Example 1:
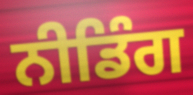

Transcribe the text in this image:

ਨੀਡਿੰਗ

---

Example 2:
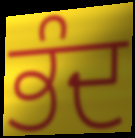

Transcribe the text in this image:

ਭੰਦ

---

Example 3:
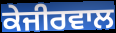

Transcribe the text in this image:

ਕੇਜੀਰਵਾਲ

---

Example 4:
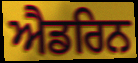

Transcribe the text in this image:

ਐਡਰਿਨ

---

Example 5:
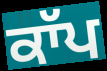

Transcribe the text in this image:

ਕਾੱਪ